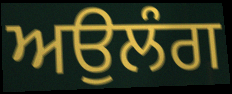
ਅਉਲੰਗ